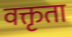
वक्तृता